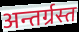
अन्तर्ग्रस्त